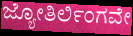
ಜ್ಯೋತಿರ್ಲಿಂಗವೇ